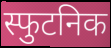
स्फुटनिक